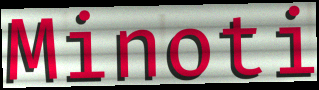
Minoti